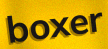
boxer